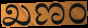
ಖಣಂ